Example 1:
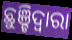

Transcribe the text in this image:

ଛୁଞ୍ଚିଦ୍ଵାରା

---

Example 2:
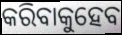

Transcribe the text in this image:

କରିବାକୁହେବ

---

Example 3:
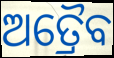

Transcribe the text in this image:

ଅତ୍ରୈବ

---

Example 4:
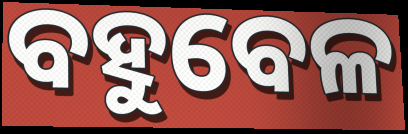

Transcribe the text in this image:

ବହୁବେଳ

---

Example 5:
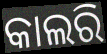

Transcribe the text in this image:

କାଲରି